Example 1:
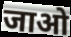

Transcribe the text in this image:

जाओ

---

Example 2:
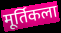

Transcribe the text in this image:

मूर्तिकला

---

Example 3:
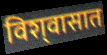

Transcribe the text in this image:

विश्वासात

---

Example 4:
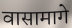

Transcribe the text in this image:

वासामागे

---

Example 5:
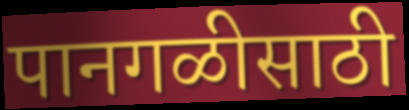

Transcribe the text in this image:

पानगळीसाठी